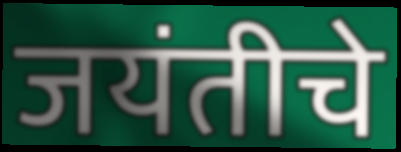
जयंतीचे